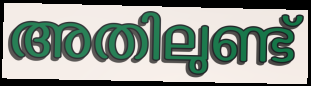
അതിലുണ്ട്